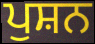
ਪੁਸ਼ਨ